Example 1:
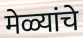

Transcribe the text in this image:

मेळ्यांचे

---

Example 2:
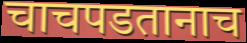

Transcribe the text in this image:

चाचपडतानाच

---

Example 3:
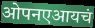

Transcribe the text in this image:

ओपनएआयचं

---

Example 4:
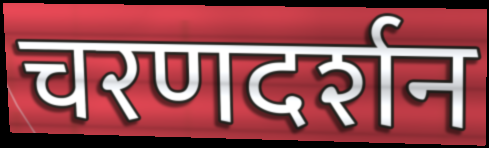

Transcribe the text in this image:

चरणदर्शन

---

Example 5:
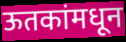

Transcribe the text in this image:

ऊतकांमधून